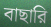
বাছারি